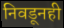
निवडूनही